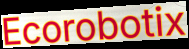
Ecorobotix